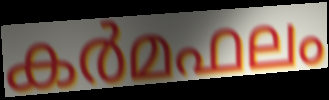
കർമഫലം